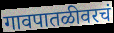
गावपातळीवरचं